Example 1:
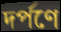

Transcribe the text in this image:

দর্পণে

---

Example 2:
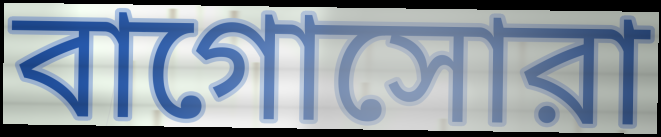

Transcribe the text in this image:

বাগোসোরা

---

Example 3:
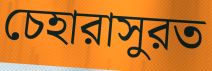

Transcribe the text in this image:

চেহারাসুরত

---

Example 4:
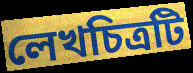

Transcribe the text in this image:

লেখচিত্রটি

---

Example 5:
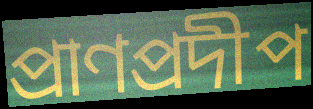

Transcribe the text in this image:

প্রাণপ্রদীপ